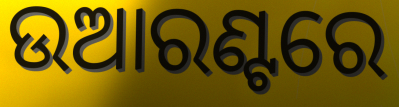
ଉଆରଣ୍ଟରେ